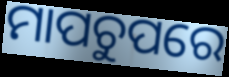
ମାପଚୁପରେ